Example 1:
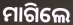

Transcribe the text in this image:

ମାଗିଲେ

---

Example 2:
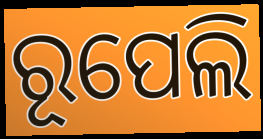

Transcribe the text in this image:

ରୂପେଲି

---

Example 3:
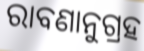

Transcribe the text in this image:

ରାବଣାନୁଗ୍ରହ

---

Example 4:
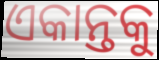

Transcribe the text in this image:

ଏକାନ୍ତକୁ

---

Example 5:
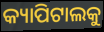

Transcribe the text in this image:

କ୍ୟାପିଟାଲକୁ